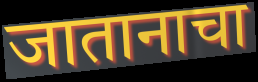
जातानाचा